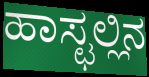
ಹಾಸ್ಟಲ್ಲಿನ